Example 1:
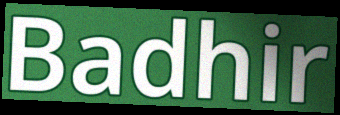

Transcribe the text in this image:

Badhir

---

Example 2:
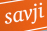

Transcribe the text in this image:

savji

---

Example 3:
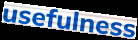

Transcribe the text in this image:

usefulness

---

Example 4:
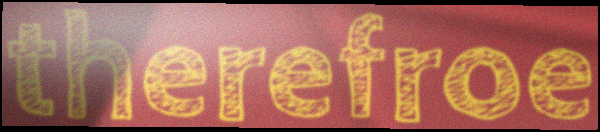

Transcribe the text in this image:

therefroe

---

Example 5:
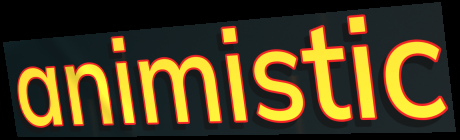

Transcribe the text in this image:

animistic